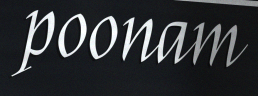
poonam